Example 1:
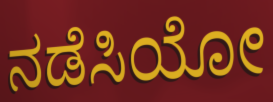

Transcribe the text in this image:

ನಡೆಸಿಯೋ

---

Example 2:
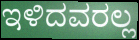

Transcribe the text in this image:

ಇಳಿದವರಲ್ಲ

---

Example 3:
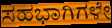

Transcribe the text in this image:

ಸಹಭಾಗಿಗಳೇ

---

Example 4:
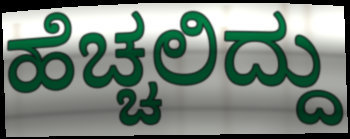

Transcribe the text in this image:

ಹೆಚ್ಚಲಿದ್ದು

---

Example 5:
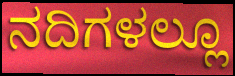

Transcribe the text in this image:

ನದಿಗಳಲ್ಲೂ